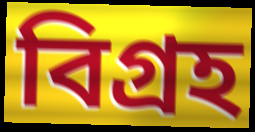
বিগ্ৰহ